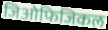
जिओफिजिकल